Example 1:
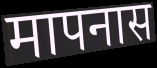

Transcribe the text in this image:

मापनास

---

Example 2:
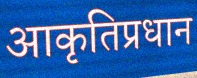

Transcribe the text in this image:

आकृतिप्रधान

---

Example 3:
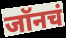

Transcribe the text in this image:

जॉनचं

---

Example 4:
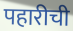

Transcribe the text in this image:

पहारीची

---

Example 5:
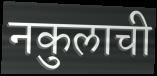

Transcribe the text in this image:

नकुलाची